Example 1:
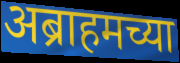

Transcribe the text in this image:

अब्राहमच्या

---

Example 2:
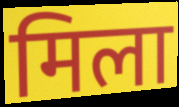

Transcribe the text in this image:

मिला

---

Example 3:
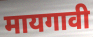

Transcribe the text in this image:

मायगावी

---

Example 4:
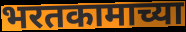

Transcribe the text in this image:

भरतकामाच्या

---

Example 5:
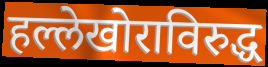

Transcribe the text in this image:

हल्लेखोराविरुद्ध